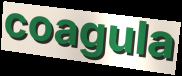
coagula